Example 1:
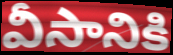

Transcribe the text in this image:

వీసానికి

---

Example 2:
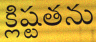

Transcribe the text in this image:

క్లిష్టతను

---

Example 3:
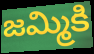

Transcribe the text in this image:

జమ్మికి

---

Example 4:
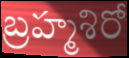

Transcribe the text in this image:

బ్రహ్మశిరో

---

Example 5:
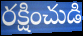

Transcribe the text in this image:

రక్షించుడి